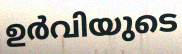
ഉർവിയുടെ